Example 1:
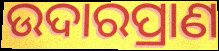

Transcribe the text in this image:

ଉଦାରପ୍ରାଣ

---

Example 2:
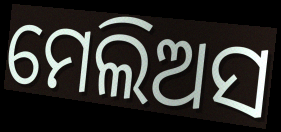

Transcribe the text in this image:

ମେଲିଅସ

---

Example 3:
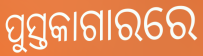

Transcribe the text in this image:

ପୁସ୍ତକାଗାରରେ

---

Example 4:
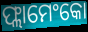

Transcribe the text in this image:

ଫ୍ଲାମେଂକୋ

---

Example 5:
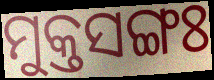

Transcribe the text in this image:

ମୁକ୍ତସଙ୍ଗଃ